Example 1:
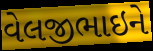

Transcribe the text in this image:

વેલજીભાઇને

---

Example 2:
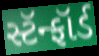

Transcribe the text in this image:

સ્ટૅન્ફૉર્ડ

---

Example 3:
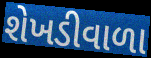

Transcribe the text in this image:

શેખડીવાળા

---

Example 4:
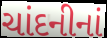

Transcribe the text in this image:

ચાંદનીનાં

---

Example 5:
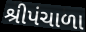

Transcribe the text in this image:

શ્રીપંચાળા